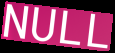
NULL